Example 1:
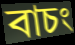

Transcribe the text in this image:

বাচং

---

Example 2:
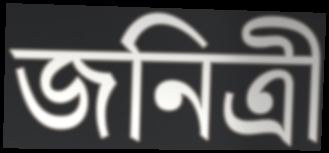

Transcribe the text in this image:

জনিত্রী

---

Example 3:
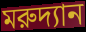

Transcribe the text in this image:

মরুদ্যান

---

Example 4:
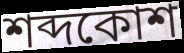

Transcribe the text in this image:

শব্দকোশ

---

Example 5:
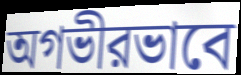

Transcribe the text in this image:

অগভীরভাবে